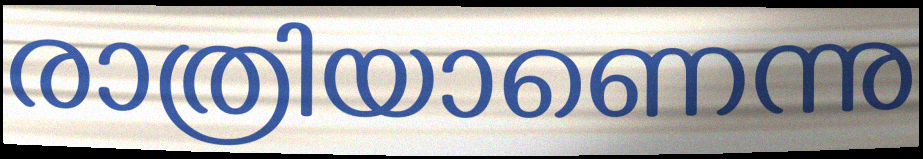
രാത്രിയാണെന്നു